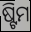
ଷ୍ଟିମ